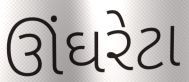
ઊંઘરેટા